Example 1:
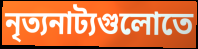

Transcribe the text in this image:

নৃত্যনাট্যগুলোতে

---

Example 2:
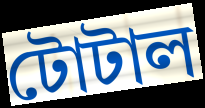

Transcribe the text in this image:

টোটাল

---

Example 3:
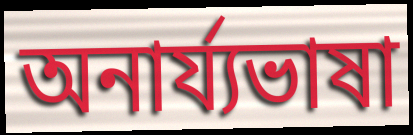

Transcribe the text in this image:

অনার্য্যভাষা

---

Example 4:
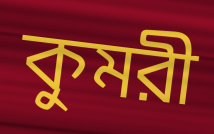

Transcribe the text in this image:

কুমরী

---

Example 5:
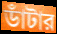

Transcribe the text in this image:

ডাঁটার